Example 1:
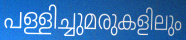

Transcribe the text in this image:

പള്ളിച്ചുമരുകളിലും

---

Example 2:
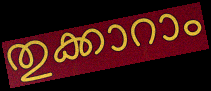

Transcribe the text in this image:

തുക്കാറാം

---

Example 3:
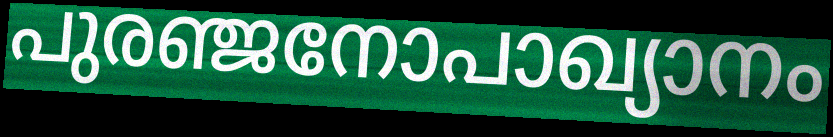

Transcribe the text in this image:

പുരഞ്ജനോപാഖ്യാനം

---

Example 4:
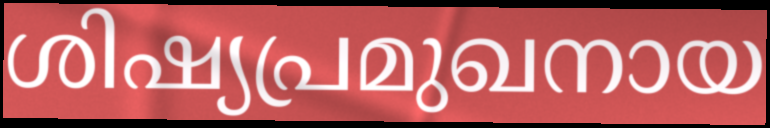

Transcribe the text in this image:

ശിഷ്യപ്രമുഖനായ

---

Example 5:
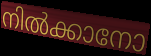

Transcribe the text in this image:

നിൽക്കാനോ